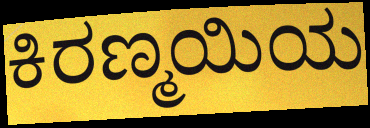
ಕಿರಣ್ಮಯಿಯ